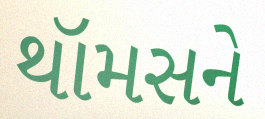
થૉમસને